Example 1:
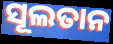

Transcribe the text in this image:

ସୂଲତାନ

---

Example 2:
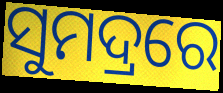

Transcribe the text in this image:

ସୁମଦ୍ରରେ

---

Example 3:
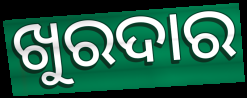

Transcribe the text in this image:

ଖୁରଦାର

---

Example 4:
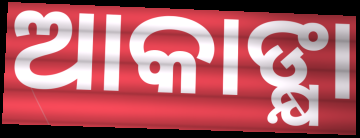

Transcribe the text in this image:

ଆକାଙ୍କ୍ଷା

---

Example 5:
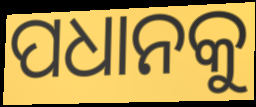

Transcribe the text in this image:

ପଧାନକୁ